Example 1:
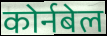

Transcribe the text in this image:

कोर्नबेल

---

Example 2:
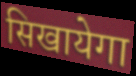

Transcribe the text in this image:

सिखायेगा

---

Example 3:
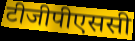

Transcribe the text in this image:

टीजीपीएससी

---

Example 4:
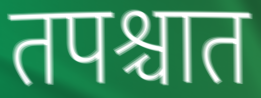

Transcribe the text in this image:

तपश्चात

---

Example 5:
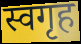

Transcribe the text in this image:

स्वगृह